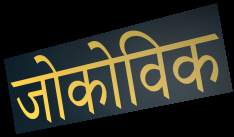
जोकोविक